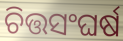
ଚିତ୍ତସଂଘର୍ଷ